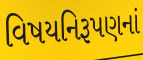
વિષયનિરૂપણનાં